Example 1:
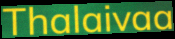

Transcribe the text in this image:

Thalaivaa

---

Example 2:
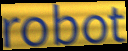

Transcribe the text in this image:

robot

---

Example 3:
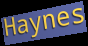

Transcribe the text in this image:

Haynes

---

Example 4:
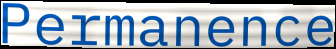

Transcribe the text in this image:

Permanence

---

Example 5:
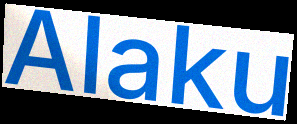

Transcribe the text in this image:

Alaku